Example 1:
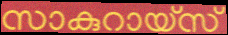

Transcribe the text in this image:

സാകുറായ്സ്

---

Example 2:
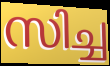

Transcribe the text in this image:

സിച്ച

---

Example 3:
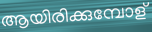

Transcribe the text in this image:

ആയിരിക്കുമ്പോള്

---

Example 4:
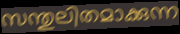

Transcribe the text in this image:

സന്തുലിതമാക്കുന്ന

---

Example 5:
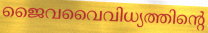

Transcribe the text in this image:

ജൈവവൈവിധ്യത്തിന്റെ